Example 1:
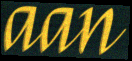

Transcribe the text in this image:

aan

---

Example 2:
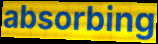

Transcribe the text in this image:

absorbing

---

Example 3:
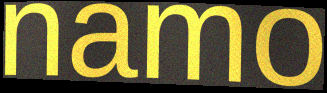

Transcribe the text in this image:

namo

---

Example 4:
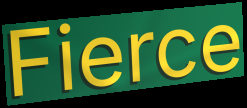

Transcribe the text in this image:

Fierce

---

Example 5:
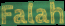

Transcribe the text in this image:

Falah